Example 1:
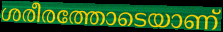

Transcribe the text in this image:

ശരീരത്തോടെയാണ്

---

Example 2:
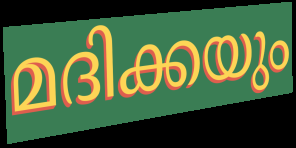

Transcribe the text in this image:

മദിക്കയും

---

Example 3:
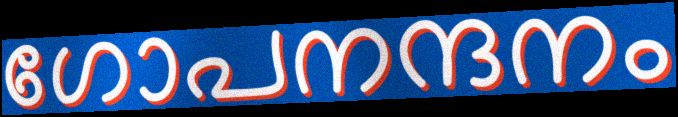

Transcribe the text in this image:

ഗോപനന്ദനം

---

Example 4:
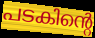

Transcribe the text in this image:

പടകിന്റെ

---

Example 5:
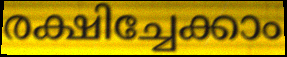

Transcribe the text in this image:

രക്ഷിച്ചേക്കാം